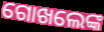
ଗୋଖଲେଙ୍କ